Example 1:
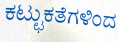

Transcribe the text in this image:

ಕಟ್ಟುಕತೆಗಳಿಂದ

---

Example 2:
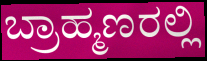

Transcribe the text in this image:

ಬ್ರಾಹ್ಮಣರಲ್ಲಿ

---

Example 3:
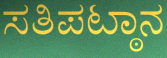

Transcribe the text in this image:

ಸತಿಪಟ್ಠಾನ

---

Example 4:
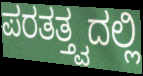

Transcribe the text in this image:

ಪರತತ್ತ್ವದಲ್ಲಿ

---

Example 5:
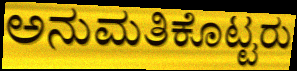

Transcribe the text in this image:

ಅನುಮತಿಕೊಟ್ಟರು